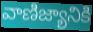
వాణిజ్యానికి